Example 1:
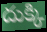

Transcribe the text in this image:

దుక్కి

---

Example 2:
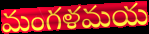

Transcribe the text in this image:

మంగళమయ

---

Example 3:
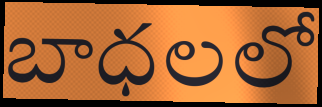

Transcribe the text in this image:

బాధలలో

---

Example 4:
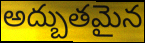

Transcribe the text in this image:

అద్బుతమైన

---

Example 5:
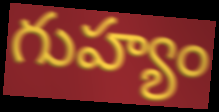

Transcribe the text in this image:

గుహ్యం